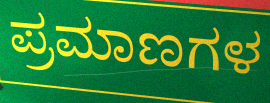
ಪ್ರಮಾಣಗಳ